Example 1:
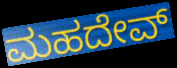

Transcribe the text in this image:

ಮಹದೇವ್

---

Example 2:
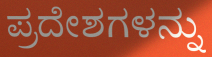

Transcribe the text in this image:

ಪ್ರದೇಶಗಳನ್ನು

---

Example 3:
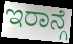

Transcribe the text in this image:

ಇರಾನ್ಗೆ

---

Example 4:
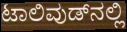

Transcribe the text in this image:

ಟಾಲಿವುಡ್‌ನಲ್ಲಿ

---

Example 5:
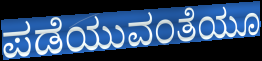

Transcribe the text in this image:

ಪಡೆಯುವಂತೆಯೂ